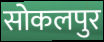
सोकलपुर